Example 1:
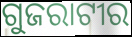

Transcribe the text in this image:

ଗୁଜରାଟୀର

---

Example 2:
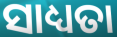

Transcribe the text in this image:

ସାଧ୍ୟତା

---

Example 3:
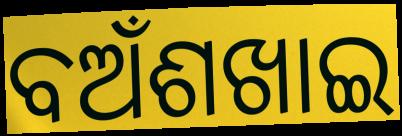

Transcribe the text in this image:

ବଅଁଶଖାଇ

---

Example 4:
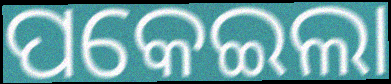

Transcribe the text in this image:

ପକେଇଲା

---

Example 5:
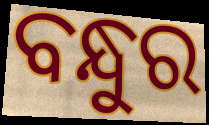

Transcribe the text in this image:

ବନ୍ଧୁର